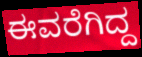
ಈವರೆಗಿದ್ದ